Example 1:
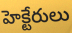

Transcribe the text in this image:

హెక్టేరులు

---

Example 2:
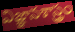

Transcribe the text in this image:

విజ్ఞానశాస్త్రం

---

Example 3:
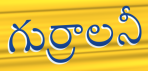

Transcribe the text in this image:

గుర్రాలనీ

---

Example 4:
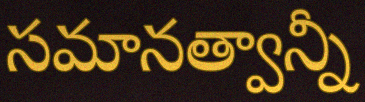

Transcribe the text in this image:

సమానత్వాన్నీ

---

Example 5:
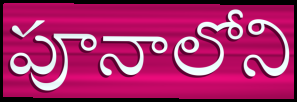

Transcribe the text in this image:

పూనాలోని